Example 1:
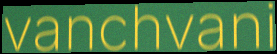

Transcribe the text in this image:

vanchvani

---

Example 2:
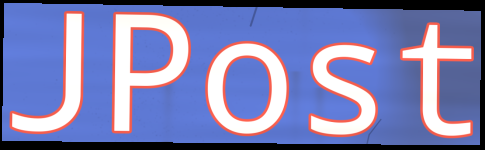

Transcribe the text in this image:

JPost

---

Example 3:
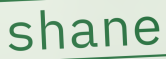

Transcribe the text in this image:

shane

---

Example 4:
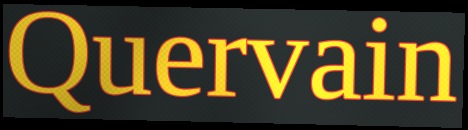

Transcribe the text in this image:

Quervain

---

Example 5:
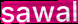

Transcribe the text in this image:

sawal